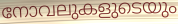
നോവലുകളുടെയും